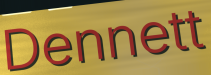
Dennett